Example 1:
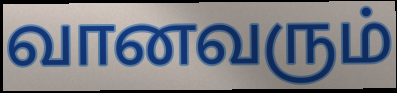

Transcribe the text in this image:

வானவரும்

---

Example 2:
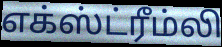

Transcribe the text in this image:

எக்ஸ்ட்ரீம்லி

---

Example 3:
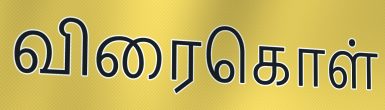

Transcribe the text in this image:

விரைகொள்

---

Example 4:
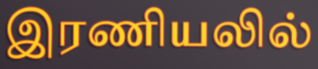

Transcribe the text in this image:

இரணியலில்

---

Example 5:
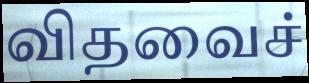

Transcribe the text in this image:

விதவைச்